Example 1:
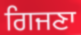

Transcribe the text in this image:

ਗਿਜਣਾ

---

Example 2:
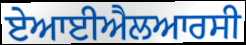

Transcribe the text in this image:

ਏਆਈਐਲਆਰਸੀ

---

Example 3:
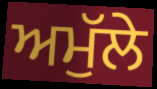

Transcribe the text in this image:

ਅਮੁੱਲੇ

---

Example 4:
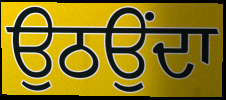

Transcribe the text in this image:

ਉਠਉਂਦਾ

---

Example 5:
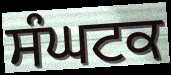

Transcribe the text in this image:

ਸੰਘਟਕ